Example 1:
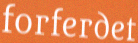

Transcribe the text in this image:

forferdet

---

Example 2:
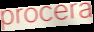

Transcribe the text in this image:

procera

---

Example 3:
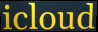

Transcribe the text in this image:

icloud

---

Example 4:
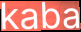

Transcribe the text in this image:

kaba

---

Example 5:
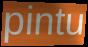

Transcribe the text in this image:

pintu